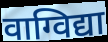
वाग्विद्या